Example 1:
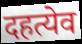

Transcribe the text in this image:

दहत्येव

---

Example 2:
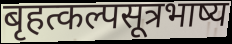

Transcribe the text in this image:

बृहत्कल्पसूत्रभाष्य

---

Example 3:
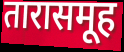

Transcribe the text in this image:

तारासमूह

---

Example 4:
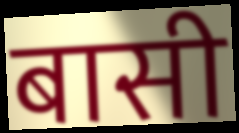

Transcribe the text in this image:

बासी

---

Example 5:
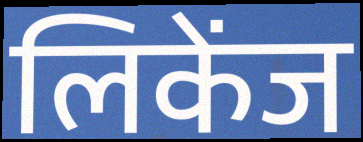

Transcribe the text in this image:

लिकेंज